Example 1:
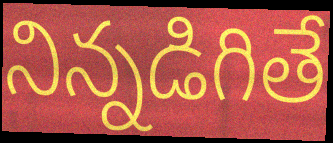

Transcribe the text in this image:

నిన్నడిగితే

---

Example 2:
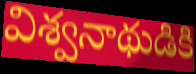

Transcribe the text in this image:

విశ్వనాథుడికి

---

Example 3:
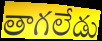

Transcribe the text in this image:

తాగలేడు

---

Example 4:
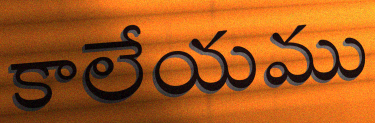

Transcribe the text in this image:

కాలేయము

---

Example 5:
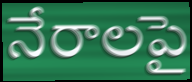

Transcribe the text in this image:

నేరాలపై